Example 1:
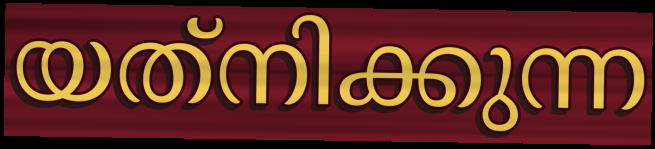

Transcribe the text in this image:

യത്‌നിക്കുന്ന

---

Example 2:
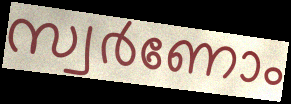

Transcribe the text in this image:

സ്വർണോം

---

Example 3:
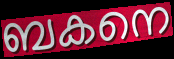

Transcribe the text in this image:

ബകനെ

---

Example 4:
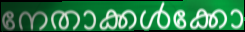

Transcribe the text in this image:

നേതാക്കൾക്കോ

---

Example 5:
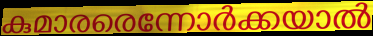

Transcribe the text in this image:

കുമാരരെന്നോർക്കയാൽ